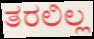
ತರಲಿಲ್ಲ